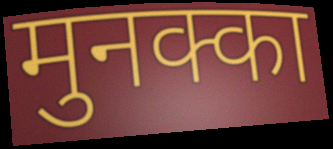
मुनक्का